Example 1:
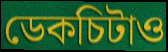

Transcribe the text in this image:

ডেকচিটাও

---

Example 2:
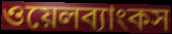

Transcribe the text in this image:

ওয়েলব্যাংকস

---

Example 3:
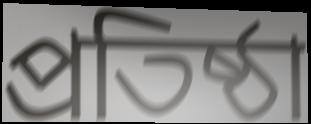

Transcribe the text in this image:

প্রতিষ্ঠা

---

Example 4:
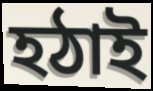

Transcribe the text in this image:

হঠাই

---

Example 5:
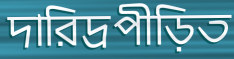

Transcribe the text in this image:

দারিদ্রপীড়িত